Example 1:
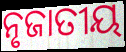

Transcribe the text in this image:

ନୃଜାତୀୟ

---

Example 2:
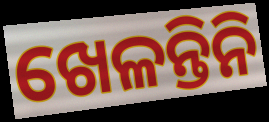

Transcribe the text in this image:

ଖେଳନ୍ତିନି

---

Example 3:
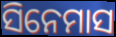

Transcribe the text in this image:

ସିନେମାସ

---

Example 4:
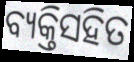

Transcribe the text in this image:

ବ୍ୟକ୍ତିସହିତ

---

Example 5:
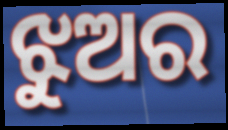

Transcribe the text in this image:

ଝୁଅର